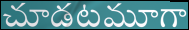
చూడటమూగా